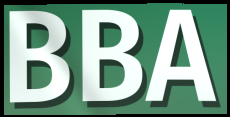
BBA